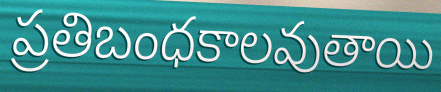
ప్రతిబంధకాలవుతాయి